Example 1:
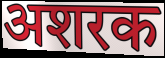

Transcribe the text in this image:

अशरक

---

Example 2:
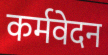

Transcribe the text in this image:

कर्मवेदन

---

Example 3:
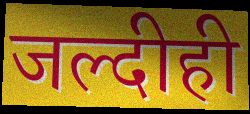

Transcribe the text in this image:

जल्दीही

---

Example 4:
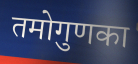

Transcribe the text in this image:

तमोगुणका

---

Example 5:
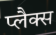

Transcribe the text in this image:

प्लैक्स